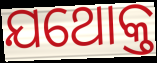
ଯଥୋକ୍ତ